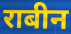
राबीन